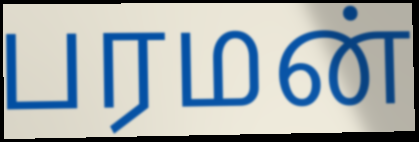
பரமன்